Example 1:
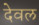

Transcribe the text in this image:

देवल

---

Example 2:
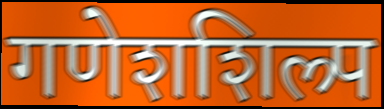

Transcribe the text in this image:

गणेशशिल्प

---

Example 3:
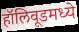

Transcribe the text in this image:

हॉलिवूडमध्ये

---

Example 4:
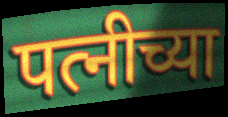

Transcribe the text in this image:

पत्नीच्या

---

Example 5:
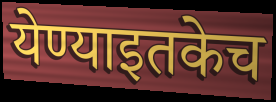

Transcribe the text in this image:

येण्याइतकेच